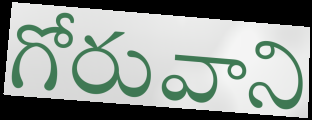
గోరువాని